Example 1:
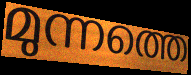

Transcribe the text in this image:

മുന്നത്തെ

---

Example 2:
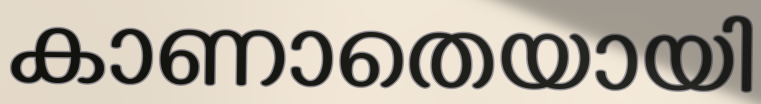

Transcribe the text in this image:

കാണാതെയായി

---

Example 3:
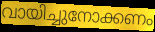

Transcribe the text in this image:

വായിച്ചുനോക്കണം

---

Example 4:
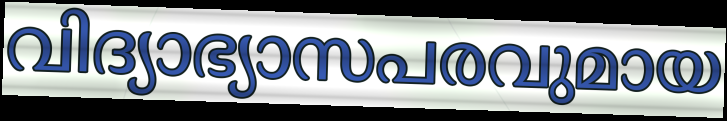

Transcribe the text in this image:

വിദ്യാഭ്യാസപരവുമായ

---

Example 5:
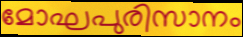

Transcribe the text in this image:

മോഘപുരിസാനം